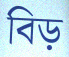
বিড়